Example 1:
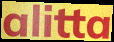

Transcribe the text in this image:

alitta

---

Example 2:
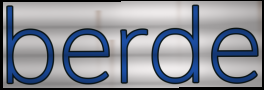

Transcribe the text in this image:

berde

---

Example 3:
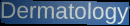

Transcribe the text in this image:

Dermatology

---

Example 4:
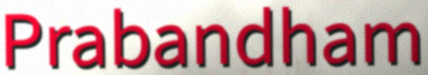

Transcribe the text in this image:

Prabandham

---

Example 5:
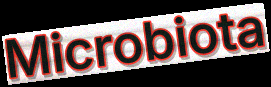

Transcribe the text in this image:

Microbiota